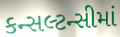
કન્સલ્ટન્સીમાં